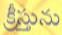
క్రీస్తును